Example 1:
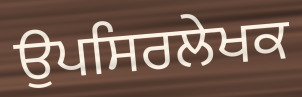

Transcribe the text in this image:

ਉਪਸਿਰਲੇਖਕ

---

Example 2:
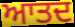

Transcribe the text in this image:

ਆਤਦ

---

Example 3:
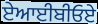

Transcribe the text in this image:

ਏਆਈਬੀਓਏ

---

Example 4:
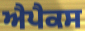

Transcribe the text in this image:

ਐਪੈਕਸ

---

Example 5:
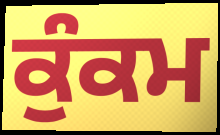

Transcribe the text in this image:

ਕੁੰਕਮ